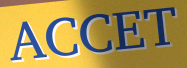
ACCET